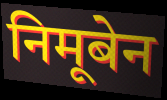
निमूबेन